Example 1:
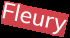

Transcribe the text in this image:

Fleury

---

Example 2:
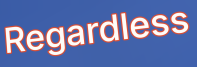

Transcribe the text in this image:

Regardless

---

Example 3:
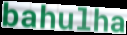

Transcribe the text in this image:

bahulha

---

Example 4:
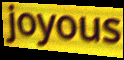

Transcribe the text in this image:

joyous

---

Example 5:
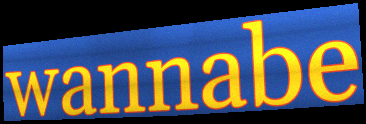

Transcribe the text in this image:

wannabe